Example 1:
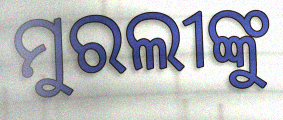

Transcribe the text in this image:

ମୁରଲୀଙ୍କୁ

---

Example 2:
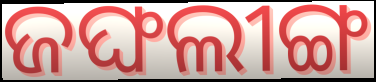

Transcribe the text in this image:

ଜଙ୍ଘଲୀଙ୍ଗ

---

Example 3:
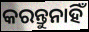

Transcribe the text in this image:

କରନ୍ତୁନାହିଁ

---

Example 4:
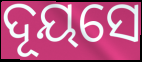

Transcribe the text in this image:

ଦୂୟସେ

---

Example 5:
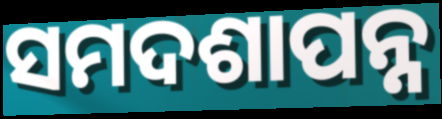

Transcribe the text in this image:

ସମଦଶାପନ୍ନ